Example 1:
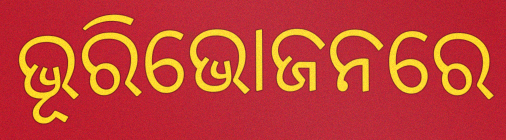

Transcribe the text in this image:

ଭୂରିଭୋଜନରେ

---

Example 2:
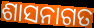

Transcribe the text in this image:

ଶାସନାଗତ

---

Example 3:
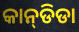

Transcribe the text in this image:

କାନ୍‌ଡିଡା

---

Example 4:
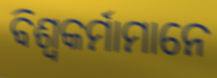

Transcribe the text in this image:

ବିଶ୍ଵକର୍ମାମାନେ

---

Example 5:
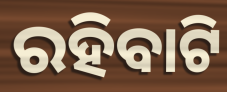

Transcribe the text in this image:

ରହିବାଟି